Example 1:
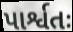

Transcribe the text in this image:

પાર્શ્વતઃ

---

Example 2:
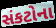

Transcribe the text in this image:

સંકટોના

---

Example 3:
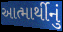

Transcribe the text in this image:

આત્માર્થીનું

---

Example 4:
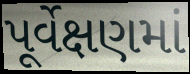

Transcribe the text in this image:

પૂર્વેક્ષણમાં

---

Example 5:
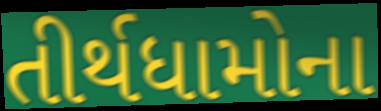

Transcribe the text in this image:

તીર્થધામોના